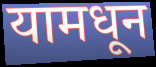
यामधून